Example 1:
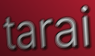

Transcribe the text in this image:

tarai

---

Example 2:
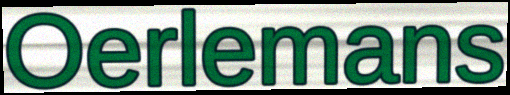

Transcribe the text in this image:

Oerlemans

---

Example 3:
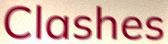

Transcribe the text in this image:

Clashes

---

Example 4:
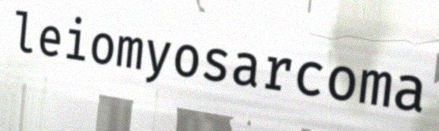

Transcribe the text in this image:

leiomyosarcoma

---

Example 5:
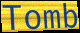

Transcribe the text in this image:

Tomb